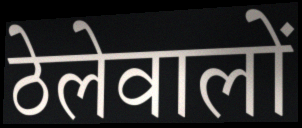
ठेलेवालों